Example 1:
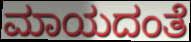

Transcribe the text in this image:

ಮಾಯದಂತೆ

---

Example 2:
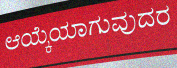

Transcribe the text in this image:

ಆಯ್ಕೆಯಾಗುವುದರ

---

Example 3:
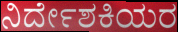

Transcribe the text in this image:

ನಿರ್ದೇಶಕಿಯರ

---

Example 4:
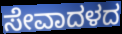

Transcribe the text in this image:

ಸೇವಾದಳದ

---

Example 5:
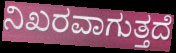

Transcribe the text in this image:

ನಿಖರವಾಗುತ್ತದೆ